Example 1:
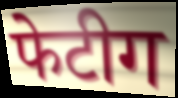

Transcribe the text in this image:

फेटीग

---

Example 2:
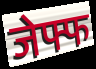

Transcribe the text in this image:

जेफ्फ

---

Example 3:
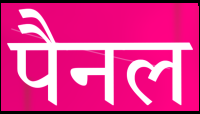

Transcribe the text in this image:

पैनल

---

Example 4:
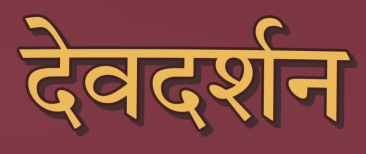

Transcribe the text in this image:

देवदर्शन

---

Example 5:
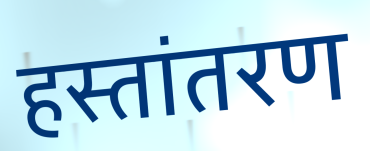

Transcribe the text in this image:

हस्तांतरण